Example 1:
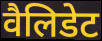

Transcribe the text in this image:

वैलिडेट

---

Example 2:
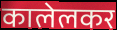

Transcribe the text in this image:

कालेलकर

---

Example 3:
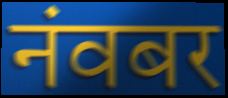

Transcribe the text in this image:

नंवबर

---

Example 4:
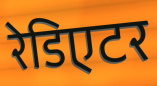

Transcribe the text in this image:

रेडिएटर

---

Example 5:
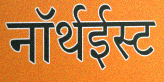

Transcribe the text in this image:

नॉर्थईस्‍ट